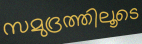
സമുദ്രത്തിലൂടെ